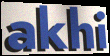
akhi